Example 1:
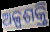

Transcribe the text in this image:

ଅଳ୍ପଶକ୍ତି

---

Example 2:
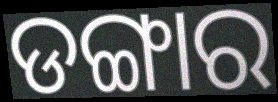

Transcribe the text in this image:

ଡଙ୍ଗାର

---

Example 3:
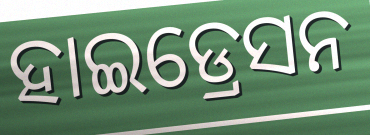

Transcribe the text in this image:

ହାଇଡ୍ରେସନ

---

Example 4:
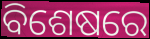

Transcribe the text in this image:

ବିଶେଷରେ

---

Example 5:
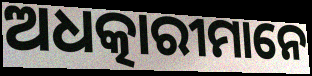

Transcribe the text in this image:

ଅଧତ୍କାରୀମାନେ